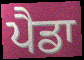
ਪੈਡਾ